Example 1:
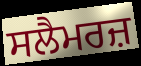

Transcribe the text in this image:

ਸਲੈਮਰਜ਼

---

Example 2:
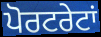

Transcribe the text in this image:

ਪੋਰਟਰੇਟਾਂ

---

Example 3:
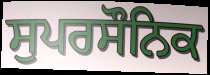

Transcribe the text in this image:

ਸੁਪਰਸੌਨਿਕ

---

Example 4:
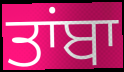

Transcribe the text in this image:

ਤਾਂਬਾ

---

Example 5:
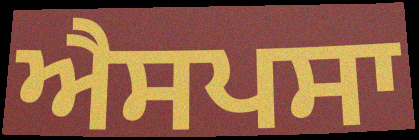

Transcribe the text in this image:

ਐਸਪਸਾ